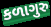
કળાગુરુ